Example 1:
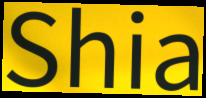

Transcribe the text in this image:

Shia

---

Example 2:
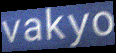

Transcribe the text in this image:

vakyo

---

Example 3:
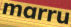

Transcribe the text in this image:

marru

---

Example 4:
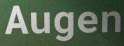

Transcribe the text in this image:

Augen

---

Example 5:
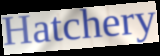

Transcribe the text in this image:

Hatchery